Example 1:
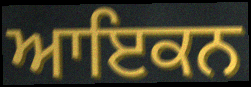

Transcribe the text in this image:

ਆਇਕਨ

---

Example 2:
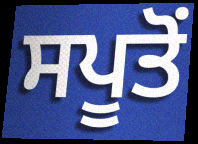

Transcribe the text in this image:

ਸਪੂਤੋਂ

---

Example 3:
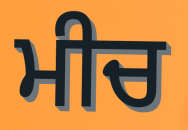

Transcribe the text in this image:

ਮੀਚ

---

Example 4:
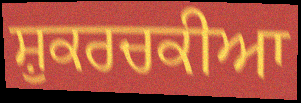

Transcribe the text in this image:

ਸ਼ੁਕਰਚਕੀਆ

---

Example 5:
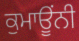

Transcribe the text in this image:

ਕੁਮਾਊਂਨੀ